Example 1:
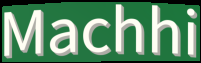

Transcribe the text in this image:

Machhi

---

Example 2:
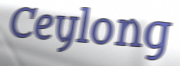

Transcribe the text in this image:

Ceylong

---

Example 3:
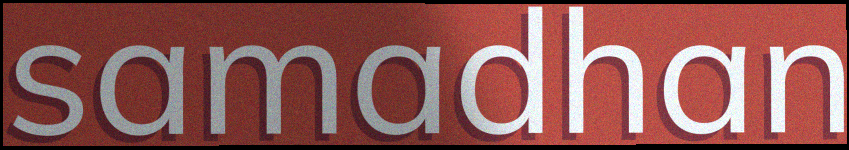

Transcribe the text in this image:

samadhan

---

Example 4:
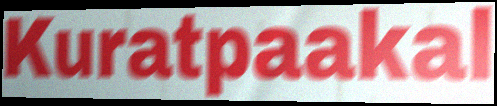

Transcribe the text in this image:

Kuratpaakal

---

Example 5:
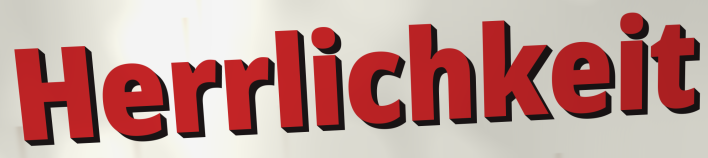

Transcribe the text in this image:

Herrlichkeit